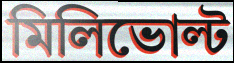
মিলিভোল্ট